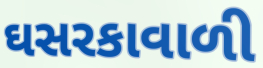
ઘસરકાવાળી